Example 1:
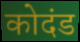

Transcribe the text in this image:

कोदंड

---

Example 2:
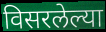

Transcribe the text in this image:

विसरलेल्या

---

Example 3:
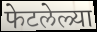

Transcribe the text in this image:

फेटलेल्या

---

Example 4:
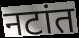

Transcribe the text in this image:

नटांत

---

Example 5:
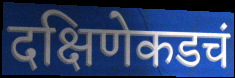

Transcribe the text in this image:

दक्षिणेकडचं